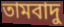
তামবাদু